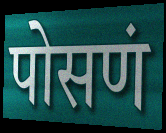
पोसणं